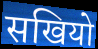
सखियो